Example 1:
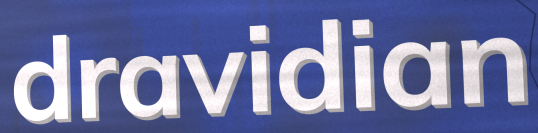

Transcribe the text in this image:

dravidian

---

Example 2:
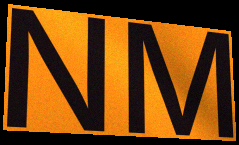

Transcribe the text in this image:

NM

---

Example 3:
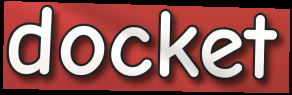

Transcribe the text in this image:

docket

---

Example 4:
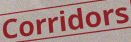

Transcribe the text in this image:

Corridors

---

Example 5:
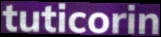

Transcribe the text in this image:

tuticorin